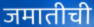
जमातीची